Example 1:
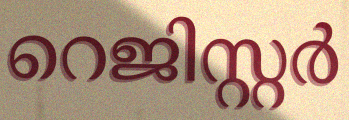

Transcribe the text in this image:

റെജിസ്റ്റർ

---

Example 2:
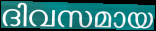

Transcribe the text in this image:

ദിവസമായ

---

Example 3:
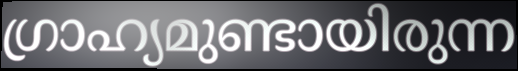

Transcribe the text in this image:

ഗ്രാഹ്യമുണ്ടായിരുന്ന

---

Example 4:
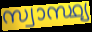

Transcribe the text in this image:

സ്വാസ്ഥ്യ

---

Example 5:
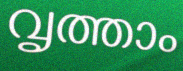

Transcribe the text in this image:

വൃത്താം